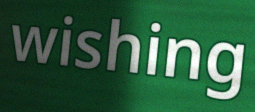
wishing